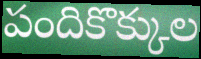
పందికొక్కుల